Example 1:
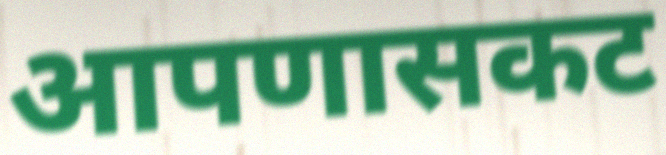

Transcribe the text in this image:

आपणासकट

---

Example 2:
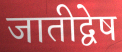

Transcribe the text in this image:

जातीद्वेष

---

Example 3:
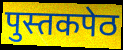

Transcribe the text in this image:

पुस्तकपेठ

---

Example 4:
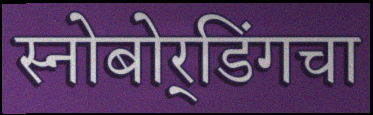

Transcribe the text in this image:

स्नोबोर्डिंगचा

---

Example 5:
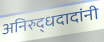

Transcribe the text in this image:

अनिरुद्धदादांनी